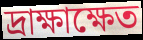
দ্রাক্ষাক্ষেত